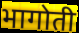
भागोती